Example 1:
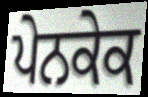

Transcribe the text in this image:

ਪੇਨਕੇਕ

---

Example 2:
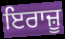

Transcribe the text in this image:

ਇਰਾਜ਼ੂ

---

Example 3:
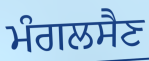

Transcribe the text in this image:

ਮੰਗਲਸੈਣ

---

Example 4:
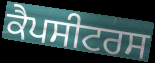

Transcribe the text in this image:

ਕੈਪਸੀਟਰਸ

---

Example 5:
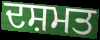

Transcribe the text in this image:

ਦਸ਼ਮਤ